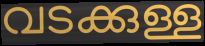
വടക്കുള്ള